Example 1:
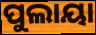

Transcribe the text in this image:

ପୁଲାୟା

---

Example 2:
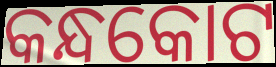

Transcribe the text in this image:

କନ୍ଧକୋଟ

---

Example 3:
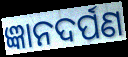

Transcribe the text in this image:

ଜ୍ଞାନଦର୍ପଣ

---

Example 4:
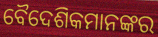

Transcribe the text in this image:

ବୈଦେଶିକମାନଙ୍କର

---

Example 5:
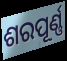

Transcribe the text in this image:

ଶରପୂର୍ଣ୍ଣ